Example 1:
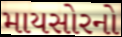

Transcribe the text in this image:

માયસોરનો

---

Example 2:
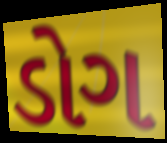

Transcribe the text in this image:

ડોગ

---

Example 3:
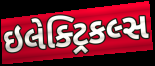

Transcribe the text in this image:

ઇલેક્ટ્રિકલ્સ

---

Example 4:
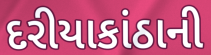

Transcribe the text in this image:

દરીયાકાંઠાની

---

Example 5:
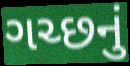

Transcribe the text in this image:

ગચ્છનું